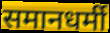
समानधर्मी